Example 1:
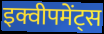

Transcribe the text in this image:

इक्वीपमेंट्स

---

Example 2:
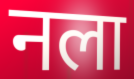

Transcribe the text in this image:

नला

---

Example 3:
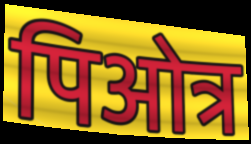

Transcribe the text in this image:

पिओत्र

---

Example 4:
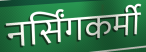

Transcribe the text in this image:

नर्सिंगकर्मी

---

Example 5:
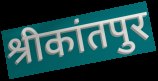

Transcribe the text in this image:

श्रीकांतपुर